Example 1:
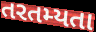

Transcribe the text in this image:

તરતમ્યતા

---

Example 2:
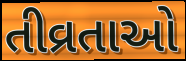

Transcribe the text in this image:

તીવ્રતાઓ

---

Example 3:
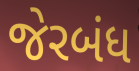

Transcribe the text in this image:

જેરબંધ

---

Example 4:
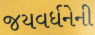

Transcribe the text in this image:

જયવર્ધનેની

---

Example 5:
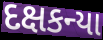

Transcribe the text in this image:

દક્ષકન્યા